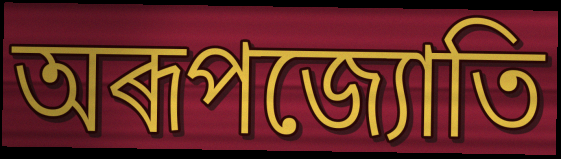
অৰূপজ্যোতি